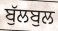
ਬੁੱਲਬੁਲ